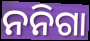
ନନିଗା